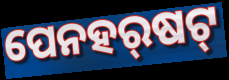
ପେନହର୍‍ଷଟ୍